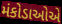
મંકોડાઓએ